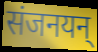
संजनयन्